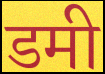
डमी